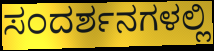
ಸಂದರ್ಶನಗಳಲ್ಲಿ